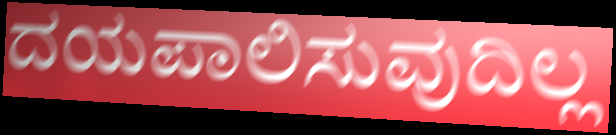
ದಯಪಾಲಿಸುವುದಿಲ್ಲ